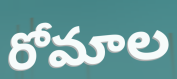
రోమాల